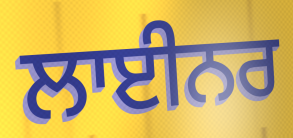
ਲਾਈਨਰ